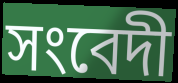
সংবেদী